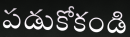
పడుకోకండి